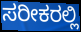
ಸರೀಕರಲ್ಲಿ